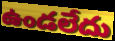
ఉండలేదు